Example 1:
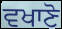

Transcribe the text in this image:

ਵਖਾਣੋ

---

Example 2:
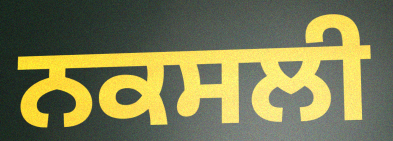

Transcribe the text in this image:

ਨਕਸਲੀ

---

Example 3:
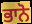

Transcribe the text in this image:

ਭਾਨੋ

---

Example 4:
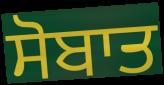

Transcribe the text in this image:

ਸੋਬਾਤ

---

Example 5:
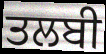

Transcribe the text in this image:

ਤਲਬੀ